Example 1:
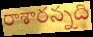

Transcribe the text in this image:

రాశారన్నది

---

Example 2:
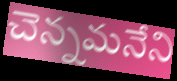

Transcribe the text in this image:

చెన్నమనేని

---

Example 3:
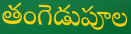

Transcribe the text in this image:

తంగెడుపూల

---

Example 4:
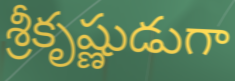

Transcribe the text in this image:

శ్రీకృష్ణుడుగా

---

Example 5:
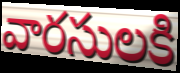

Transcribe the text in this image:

వారసులకి